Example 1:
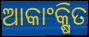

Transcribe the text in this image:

ଆକାଂକ୍ଷିତ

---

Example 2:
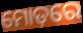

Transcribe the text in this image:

ମୋଡ଼ରେ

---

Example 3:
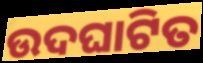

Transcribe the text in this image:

ଉଦଘାଟିତ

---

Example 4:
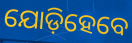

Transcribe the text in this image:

ଯୋଡ଼ିହେବେ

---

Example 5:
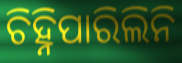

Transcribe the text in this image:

ଚିହ୍ନିପାରିଲିନି